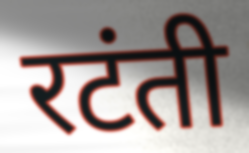
रटंती